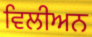
ਵਿਲੀਅਨ